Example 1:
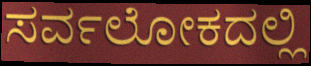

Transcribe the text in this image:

ಸರ್ವಲೋಕದಲ್ಲಿ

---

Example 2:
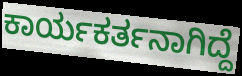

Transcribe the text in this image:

ಕಾರ್ಯಕರ್ತನಾಗಿದ್ದೆ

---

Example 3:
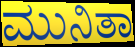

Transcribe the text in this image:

ಮುನಿತಾ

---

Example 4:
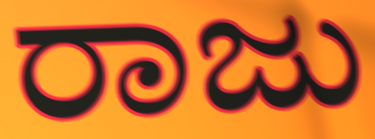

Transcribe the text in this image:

ರಾಜು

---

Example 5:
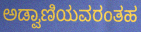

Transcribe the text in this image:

ಅಡ್ವಾಣಿಯವರಂತಹ